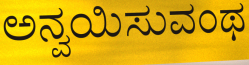
ಅನ್ವಯಿಸುವಂಥ